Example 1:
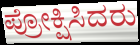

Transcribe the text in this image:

ಪ್ರೋಕ್ಷಿಸಿದರು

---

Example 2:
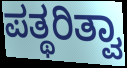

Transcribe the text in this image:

ಪತ್ಥರಿತ್ವಾ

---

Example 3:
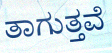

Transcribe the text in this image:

ತಾಗುತ್ತವೆ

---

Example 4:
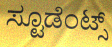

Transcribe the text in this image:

ಸ್ಟೂಡೆಂಟ್ಸ್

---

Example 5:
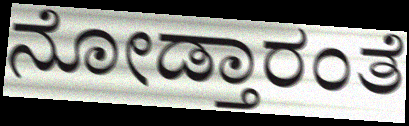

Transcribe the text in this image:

ನೋಡ್ತಾರಂತೆ